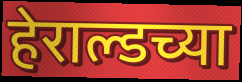
हेराल्डच्या